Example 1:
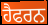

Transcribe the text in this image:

ਹੈਫਰਨ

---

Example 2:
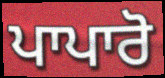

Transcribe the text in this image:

ਪਾਪਾਰੋ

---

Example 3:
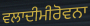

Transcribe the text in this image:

ਵਲਾਦੀਮੀਰੋਵਨਾ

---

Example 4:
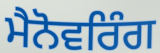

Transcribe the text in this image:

ਮੈਨੋਵਰਿੰਗ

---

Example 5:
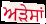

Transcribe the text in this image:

ਅੜੇਸਾਂ